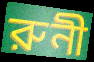
রুনী